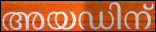
അയഡിന്